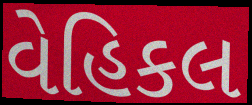
વેહિકલ